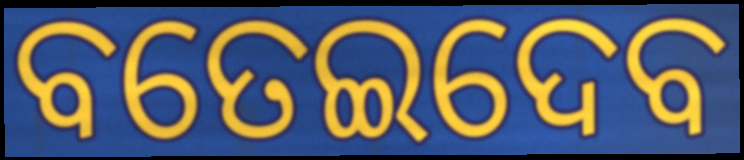
ବତେଇଦେବ